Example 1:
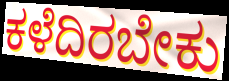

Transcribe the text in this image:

ಕಳೆದಿರಬೇಕು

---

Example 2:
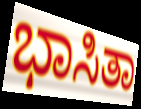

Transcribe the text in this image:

ಭಾಸಿತಾ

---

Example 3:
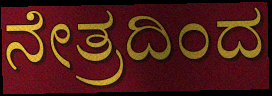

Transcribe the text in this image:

ನೇತ್ರದಿಂದ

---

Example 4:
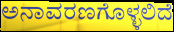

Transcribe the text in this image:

ಅನಾವರಣಗೊಳ್ಳಲಿದೆ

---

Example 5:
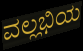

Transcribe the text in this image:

ವಲ್ಲಭಿಯ